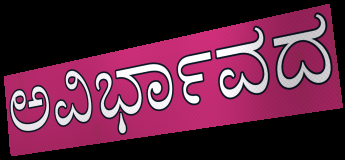
ಅವಿರ್ಭಾವದ